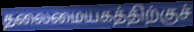
தலைமையகத்திற்குச்